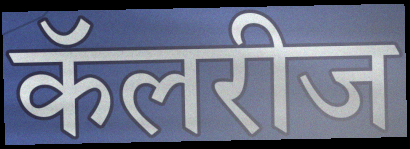
कॅलरीज